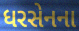
ધરસેનના